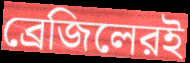
ব্রেজিলেরই